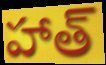
హాత్